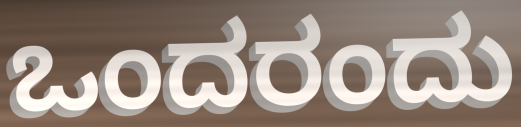
ಒಂದರಂದು